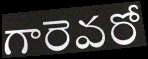
గారెవరో